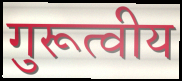
गुरूत्वीय